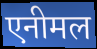
एनीमल